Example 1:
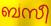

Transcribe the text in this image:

ബസീ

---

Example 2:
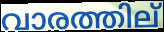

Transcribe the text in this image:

വാരത്തില്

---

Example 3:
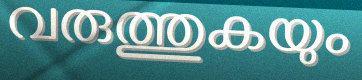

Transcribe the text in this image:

വരുത്തുകയും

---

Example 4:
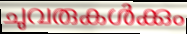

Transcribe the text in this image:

ചുവരുകൾക്കും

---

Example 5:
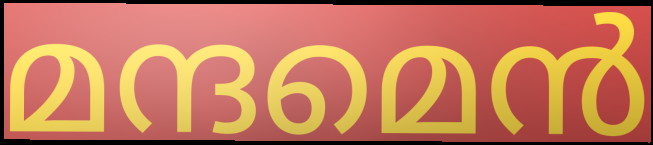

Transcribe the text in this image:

മന്ദമെൻ